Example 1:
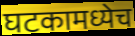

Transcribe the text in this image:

घटकामध्येच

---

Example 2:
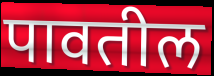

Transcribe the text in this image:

पावतील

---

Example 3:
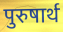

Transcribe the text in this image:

पुरुषार्थ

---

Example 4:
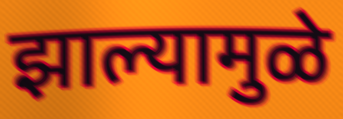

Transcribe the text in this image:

झाल्यामुळे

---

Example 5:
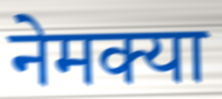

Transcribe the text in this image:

नेमक्या